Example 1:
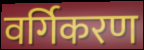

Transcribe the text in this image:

वर्गिकरण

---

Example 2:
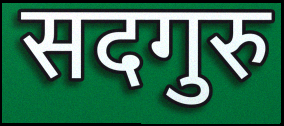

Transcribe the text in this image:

सदगुरु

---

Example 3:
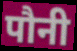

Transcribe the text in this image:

पौनी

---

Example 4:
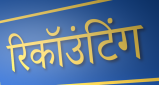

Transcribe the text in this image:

रिकॉउंटिंग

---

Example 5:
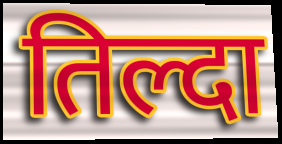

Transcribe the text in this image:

तिल्दा